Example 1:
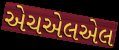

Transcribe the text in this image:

એચએલએલ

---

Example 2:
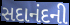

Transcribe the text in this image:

સદાનંદની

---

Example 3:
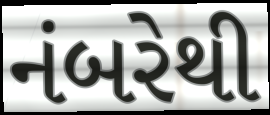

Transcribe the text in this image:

નંબરેથી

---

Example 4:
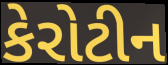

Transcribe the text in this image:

કેરોટીન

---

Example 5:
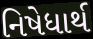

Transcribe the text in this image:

નિષેધાર્થ